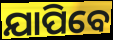
ଯାପିବେ